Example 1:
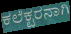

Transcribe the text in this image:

ಕಲೆಕ್ಟರನಾಗಿ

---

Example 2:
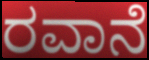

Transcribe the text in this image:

ರವಾನೆ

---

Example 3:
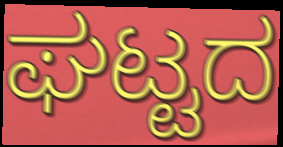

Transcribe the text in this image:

ಘಟ್ಟದ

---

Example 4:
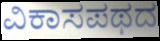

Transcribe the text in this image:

ವಿಕಾಸಪಥದ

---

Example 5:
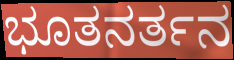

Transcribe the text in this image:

ಭೂತನರ್ತನ